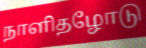
நாளிதழோடு